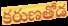
కరుణతోడ